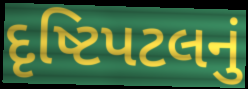
દૃષ્ટિપટલનું